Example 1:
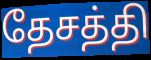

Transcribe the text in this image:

தேசத்தி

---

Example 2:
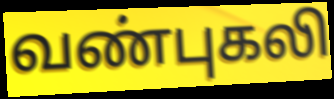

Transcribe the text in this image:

வண்புகலி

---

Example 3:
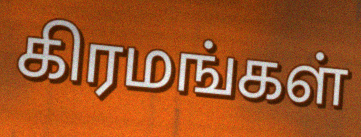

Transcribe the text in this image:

கிரமங்கள்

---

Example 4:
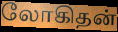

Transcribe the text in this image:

லோகிதன்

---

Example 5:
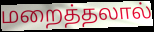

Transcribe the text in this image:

மறைத்தலால்